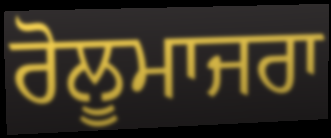
ਰੋਲੂਮਾਜਰਾ